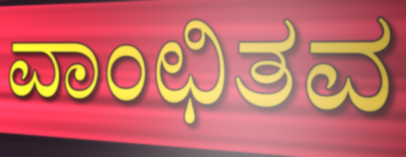
ವಾಂಛಿತವ